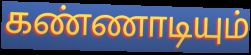
கண்ணாடியும்